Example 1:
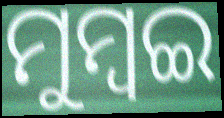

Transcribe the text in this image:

ମୁମ୍ୱଇ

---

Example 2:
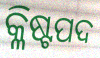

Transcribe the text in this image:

କ୍ଳିଷ୍ଟପଦ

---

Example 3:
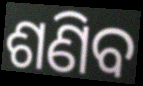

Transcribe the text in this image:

ଶଣିବ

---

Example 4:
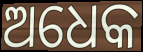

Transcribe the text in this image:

ଅଧେକ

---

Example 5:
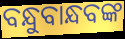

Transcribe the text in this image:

ବନ୍ଧୁବାନ୍ଧବଙ୍କ